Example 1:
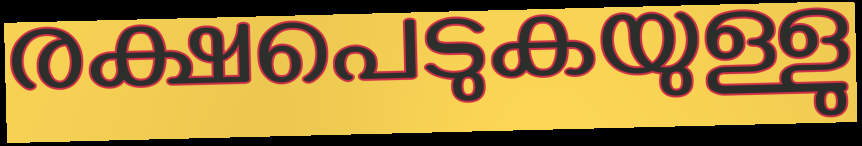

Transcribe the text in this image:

രക്ഷപെടുകയുള്ളു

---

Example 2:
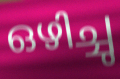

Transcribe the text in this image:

ഒഴിച്ചു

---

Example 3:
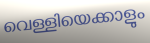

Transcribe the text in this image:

വെള്ളിയെക്കാളും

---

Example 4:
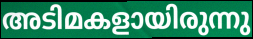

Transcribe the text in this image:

അടിമകളായിരുന്നു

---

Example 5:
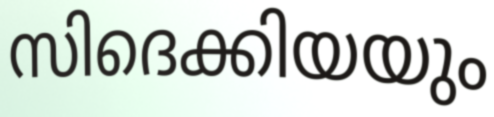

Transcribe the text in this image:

സിദെക്കിയയും